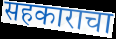
सहकाराचा